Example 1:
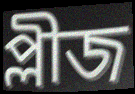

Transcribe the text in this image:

প্লীজ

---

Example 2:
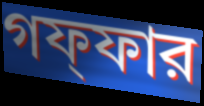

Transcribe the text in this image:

গফ্ফার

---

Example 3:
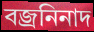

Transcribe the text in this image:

বজ্রনিনাদ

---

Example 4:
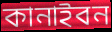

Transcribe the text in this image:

কানাইবন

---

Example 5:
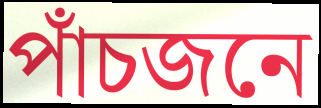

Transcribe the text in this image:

পাঁচজনে